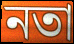
নতা